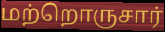
மற்றொருசார்